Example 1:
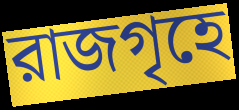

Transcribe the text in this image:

রাজগৃহে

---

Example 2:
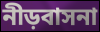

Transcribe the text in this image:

নীড়বাসনা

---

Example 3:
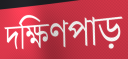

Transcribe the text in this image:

দক্ষিণপাড়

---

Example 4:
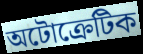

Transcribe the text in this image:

অটোক্রেটিক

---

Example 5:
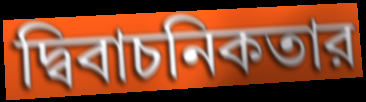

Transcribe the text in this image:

দ্বিবাচনিকতার